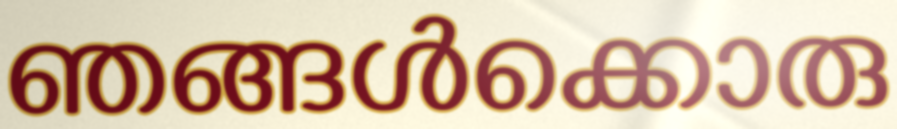
ഞങ്ങൾക്കൊരു